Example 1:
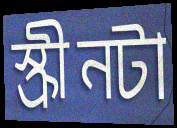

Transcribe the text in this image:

স্ক্রীনটা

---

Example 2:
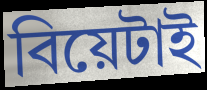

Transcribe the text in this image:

বিয়েটাই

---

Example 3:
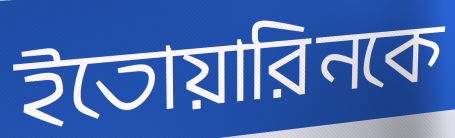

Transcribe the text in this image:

ইতোয়ারিনকে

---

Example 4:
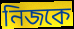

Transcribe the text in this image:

নিজকে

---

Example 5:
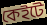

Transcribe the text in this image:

কেইটে